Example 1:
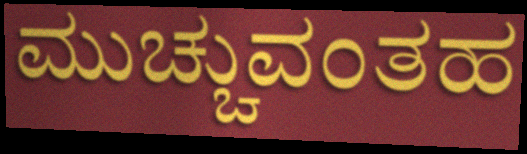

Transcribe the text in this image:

ಮುಚ್ಚುವಂತಹ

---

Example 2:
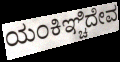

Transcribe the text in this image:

ಯಂಕಿಞ್ಚಿದೇವ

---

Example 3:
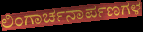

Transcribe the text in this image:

ಲಿಂಗಾರ್ಚನಾರ್ಪಣಗಳ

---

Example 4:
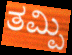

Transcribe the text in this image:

ತಮ್ಪಿ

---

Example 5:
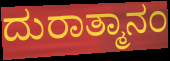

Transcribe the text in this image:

ದುರಾತ್ಮಾನಂ